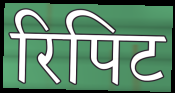
रिपिट